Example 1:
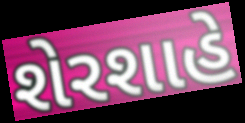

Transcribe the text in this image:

શેરશાહે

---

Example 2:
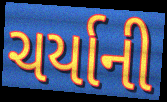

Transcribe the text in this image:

ચર્યાની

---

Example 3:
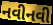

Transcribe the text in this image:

નવીનવી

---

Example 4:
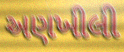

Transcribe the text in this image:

અણખીલી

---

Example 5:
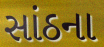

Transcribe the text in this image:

સાંઠના